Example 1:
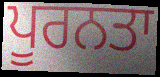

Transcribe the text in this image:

ਪੂਰਨਤਾ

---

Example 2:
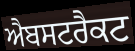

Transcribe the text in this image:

ਐਬਸਟਰੈਕਟ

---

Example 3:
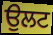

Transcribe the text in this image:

ਉਲਟ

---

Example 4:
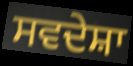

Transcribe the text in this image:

ਸਵਦੇਸ਼ਾ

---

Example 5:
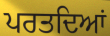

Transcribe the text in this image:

ਪਰਤਦਿਆਂ